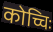
कोच्चिः